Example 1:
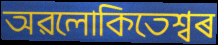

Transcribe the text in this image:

অৱলোকিতেশ্বৰ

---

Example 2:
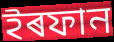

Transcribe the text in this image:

ইৰফান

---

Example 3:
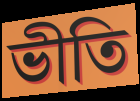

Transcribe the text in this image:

ভীতি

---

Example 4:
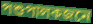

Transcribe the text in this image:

পশুপালকজনে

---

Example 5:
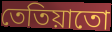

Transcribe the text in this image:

তেতিয়াতো